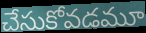
చేసుకోవడమూ